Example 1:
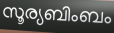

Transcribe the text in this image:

സൂര്യബിംബം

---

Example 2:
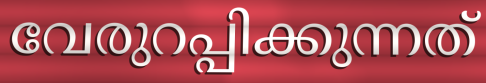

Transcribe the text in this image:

വേരുറപ്പിക്കുന്നത്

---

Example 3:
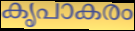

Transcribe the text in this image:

കൃപാകരം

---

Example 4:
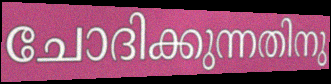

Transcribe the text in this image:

ചോദിക്കുന്നതിനു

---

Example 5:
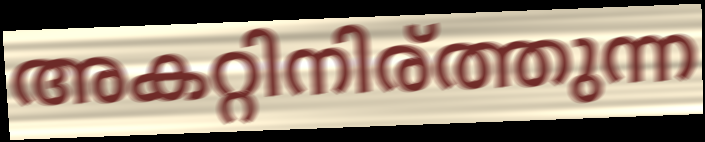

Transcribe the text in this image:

അകറ്റിനിര്ത്തുന്ന